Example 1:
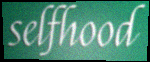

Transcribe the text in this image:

selfhood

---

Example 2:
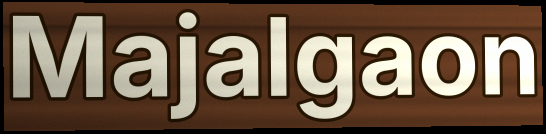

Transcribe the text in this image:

Majalgaon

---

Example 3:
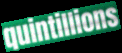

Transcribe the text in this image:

quintillions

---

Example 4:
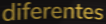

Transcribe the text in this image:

diferentes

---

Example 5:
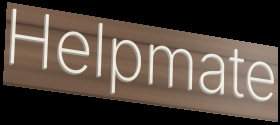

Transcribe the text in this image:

Helpmate